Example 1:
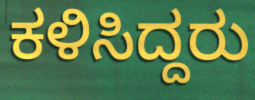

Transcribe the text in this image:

ಕಳಿಸಿದ್ದರು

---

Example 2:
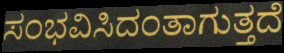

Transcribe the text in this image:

ಸಂಭವಿಸಿದಂತಾಗುತ್ತದೆ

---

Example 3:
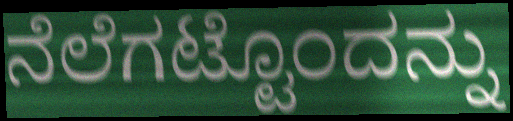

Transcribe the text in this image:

ನೆಲೆಗಟ್ಟೊಂದನ್ನು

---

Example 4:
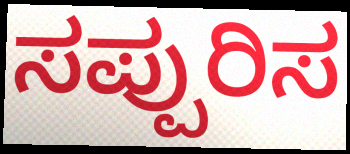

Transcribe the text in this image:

ಸಪ್ಪುರಿಸ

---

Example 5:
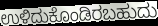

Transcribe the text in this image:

ಉಳಿದುಕೊಂಡಿರಬಹುದು